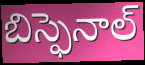
బిస్ఫెనాల్